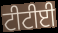
ਟੀਟੀਈ